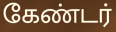
கேண்டர்